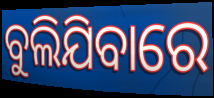
ବୁଲିଯିବାରେ